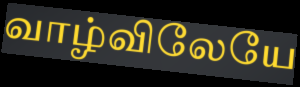
வாழ்விலேயே